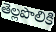
తెల్లపొలికి